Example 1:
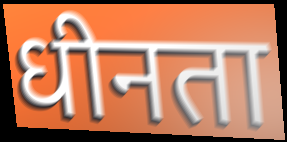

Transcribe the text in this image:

धीनता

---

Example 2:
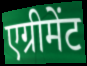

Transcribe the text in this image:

एग्रीमेंट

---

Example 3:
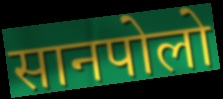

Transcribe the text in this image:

सानपोलो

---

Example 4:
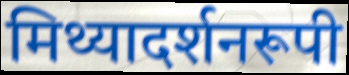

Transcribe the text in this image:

मिथ्यादर्शनरूपी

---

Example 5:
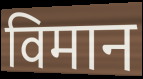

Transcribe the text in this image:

विमान